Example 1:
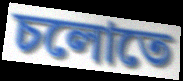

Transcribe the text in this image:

চলোতে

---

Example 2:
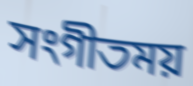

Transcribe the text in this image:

সংগীতময়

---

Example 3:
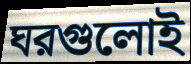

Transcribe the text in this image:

ঘরগুলোই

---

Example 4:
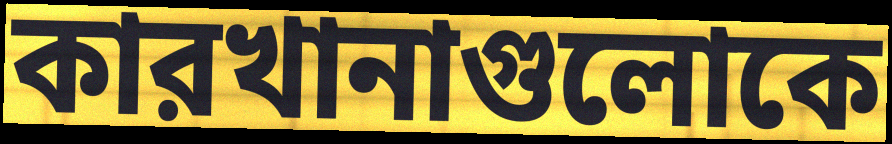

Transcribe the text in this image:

কারখানাগুলোকে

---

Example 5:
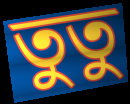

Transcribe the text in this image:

তুতু